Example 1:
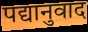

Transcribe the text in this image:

पद्यानुवाद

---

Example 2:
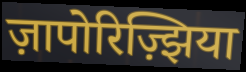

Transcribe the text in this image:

ज़ापोरिज़्झिया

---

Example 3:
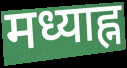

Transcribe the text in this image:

मध्याह्न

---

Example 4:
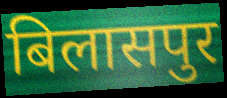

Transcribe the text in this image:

बिलासपुर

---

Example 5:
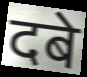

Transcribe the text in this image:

दबे